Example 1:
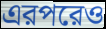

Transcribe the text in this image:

এরপরেও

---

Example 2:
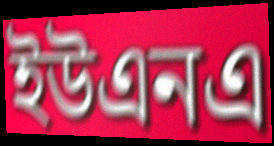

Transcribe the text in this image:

ইউএনএ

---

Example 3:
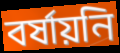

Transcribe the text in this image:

বর্ষায়নি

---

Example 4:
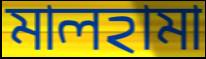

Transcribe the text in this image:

মালহামা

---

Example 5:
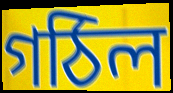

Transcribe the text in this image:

গঠিল